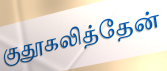
குதூகலித்தேன்